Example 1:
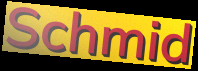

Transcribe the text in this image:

Schmid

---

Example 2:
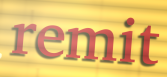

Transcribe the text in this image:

remit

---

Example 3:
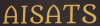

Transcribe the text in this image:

AISATS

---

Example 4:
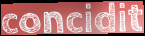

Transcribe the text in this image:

concidit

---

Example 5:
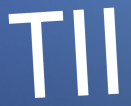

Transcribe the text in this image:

TII